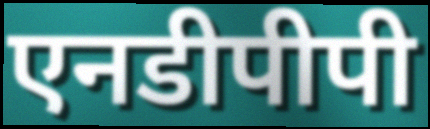
एनडीपीपी